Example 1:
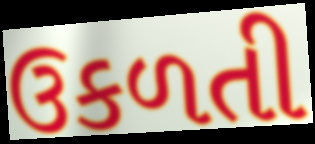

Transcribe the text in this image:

ઉકળતી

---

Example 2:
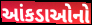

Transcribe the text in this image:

આંકડાઓનો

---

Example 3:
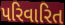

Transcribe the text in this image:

પરિવારિત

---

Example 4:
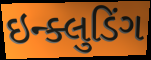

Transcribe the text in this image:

ઇન્ક્લુડિંગ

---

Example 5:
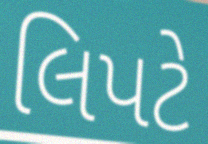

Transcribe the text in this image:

લિપટે